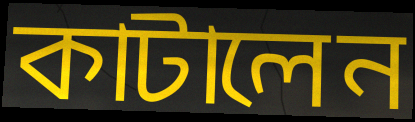
কাটালেন